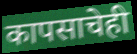
कापसाचेही